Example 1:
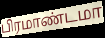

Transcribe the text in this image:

பிரமாண்டமா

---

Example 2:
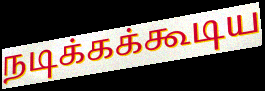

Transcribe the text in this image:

நடிக்கக்கூடிய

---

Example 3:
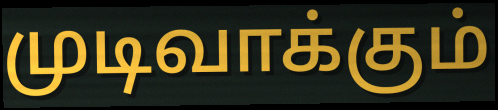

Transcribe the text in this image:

முடிவாக்கும்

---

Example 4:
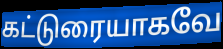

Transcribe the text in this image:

கட்டுரையாகவே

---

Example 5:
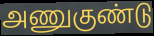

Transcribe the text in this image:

அணுகுண்டு